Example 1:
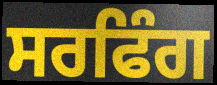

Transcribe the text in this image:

ਸਰਫਿੰਗ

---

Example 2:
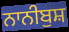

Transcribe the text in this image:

ਨਾਨੀਬੁਸ਼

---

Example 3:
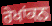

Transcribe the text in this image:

ਰੇਖਾਂਕਨ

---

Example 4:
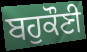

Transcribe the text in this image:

ਬਹੁਕੌਣੀ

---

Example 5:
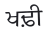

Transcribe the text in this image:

ਖਢ਼ੀ